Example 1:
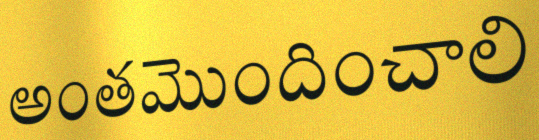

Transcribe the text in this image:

అంతమొందించాలి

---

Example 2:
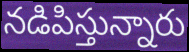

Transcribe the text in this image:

నడిపిస్తున్నారు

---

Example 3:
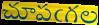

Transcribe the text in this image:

చూపఁగల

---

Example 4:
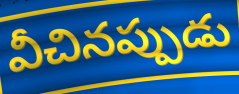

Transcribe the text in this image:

వీచినప్పుడు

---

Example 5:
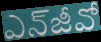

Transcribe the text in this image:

ఎన్‌జీవో